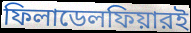
ফিলাডেলফিয়ারই